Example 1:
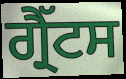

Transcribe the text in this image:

ਗ੍ਰੈੱਟਸ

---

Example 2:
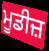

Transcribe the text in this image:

ਮੂਡੀਜ਼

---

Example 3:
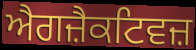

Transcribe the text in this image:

ਐਗਜ਼ੈਕਟਿਵਜ਼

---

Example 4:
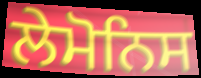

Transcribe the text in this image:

ਲੇਮੋਨਿਸ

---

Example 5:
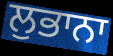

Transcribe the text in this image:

ਲੁਭਾਨਾ